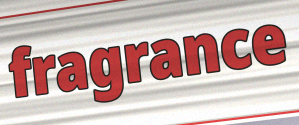
fragrance